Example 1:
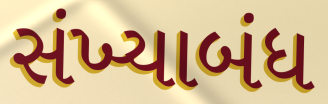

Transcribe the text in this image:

સંખ્યાબંધ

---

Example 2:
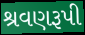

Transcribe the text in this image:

શ્રવણરૂપી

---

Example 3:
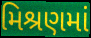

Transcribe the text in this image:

મિશ્રણમાં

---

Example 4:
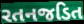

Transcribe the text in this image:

રતનજડિત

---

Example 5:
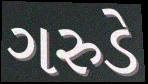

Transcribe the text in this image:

ગરુડે